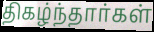
திகழ்ந்தார்கள்